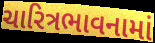
ચારિત્રભાવનામાં